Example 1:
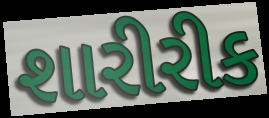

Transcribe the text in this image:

શારીરીક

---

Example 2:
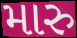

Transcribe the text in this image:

મારુ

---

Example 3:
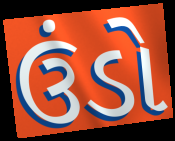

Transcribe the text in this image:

ઉંડો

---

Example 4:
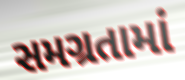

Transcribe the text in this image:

સમગ્રતામાં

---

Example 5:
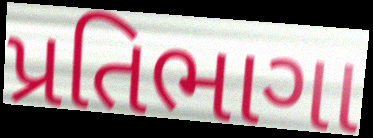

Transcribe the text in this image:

પ્રતિભાગા